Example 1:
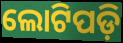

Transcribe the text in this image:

ଲୋଟିପଡ଼ି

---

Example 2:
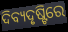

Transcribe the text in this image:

ଦିବ୍ୟଦୃଷ୍ଟିରେ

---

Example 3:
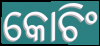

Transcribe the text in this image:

କୋଚିଂ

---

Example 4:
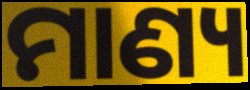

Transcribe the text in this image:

ମାଣ୍ୟ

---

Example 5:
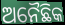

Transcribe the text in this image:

ଅନୈଛିକ